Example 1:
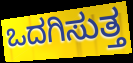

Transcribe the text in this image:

ಒದಗಿಸುತ್ತ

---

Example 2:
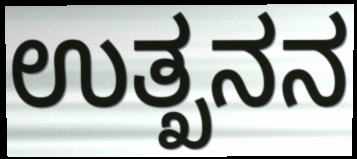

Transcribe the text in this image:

ಉತ್ಖನನ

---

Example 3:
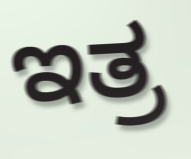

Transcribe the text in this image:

ಇತ್ರ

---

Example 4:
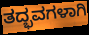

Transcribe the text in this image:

ತದ್ಭವಗಳಾಗಿ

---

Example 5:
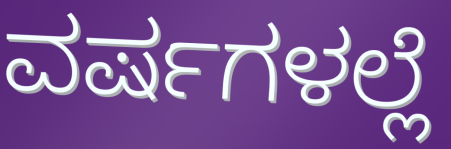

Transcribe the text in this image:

ವರ್ಷಗಳಲ್ಲೆ